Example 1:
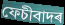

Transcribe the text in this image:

ফেচীবাদৰ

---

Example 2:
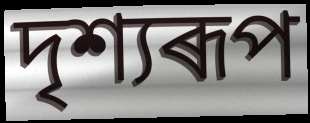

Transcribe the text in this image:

দৃশ্যৰূপ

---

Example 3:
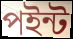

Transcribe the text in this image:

পইন্ট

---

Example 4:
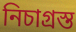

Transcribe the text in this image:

নিচাগ্ৰস্ত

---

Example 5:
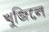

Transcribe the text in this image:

খুজিলে